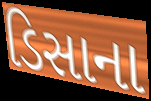
ડિસાના